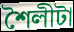
শৈলীটা